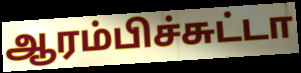
ஆரம்பிச்சுட்டா